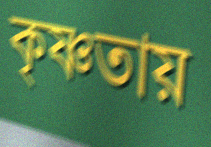
কৃষ্ণতায়